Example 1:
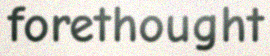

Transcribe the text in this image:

forethought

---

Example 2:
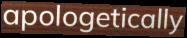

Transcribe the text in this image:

apologetically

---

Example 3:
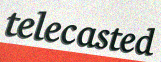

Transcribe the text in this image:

telecasted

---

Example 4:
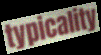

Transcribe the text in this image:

typicality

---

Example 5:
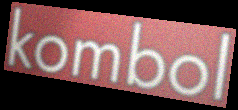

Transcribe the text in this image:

kombol